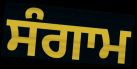
ਸੰਗਾਮ